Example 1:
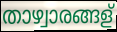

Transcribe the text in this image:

താഴ്വാരങ്ങള്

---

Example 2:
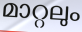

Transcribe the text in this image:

മാറ്റലും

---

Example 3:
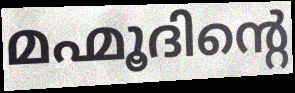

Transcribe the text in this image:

മഹ്മൂദിന്റെ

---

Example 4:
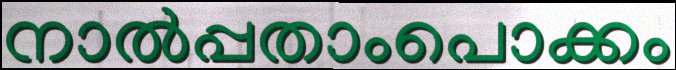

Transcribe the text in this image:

നാൽപ്പതാംപൊക്കം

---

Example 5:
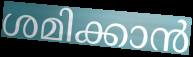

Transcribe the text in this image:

ശമിക്കാൻ